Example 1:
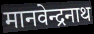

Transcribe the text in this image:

मानवेन्द्रनाथ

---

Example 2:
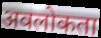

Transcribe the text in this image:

अवलोकता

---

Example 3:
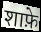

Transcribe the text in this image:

शाफ़े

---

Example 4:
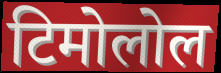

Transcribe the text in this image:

टिमोलोल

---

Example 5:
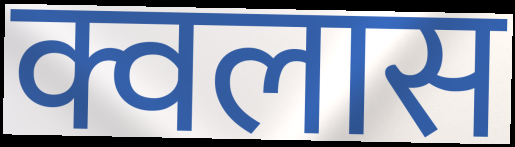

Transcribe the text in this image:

क्वलास